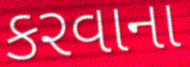
કરવાના